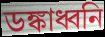
ডঙ্কাধ্বনি